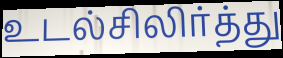
உடல்சிலிர்த்து